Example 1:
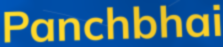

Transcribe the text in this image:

Panchbhai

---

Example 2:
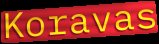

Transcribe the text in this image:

Koravas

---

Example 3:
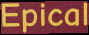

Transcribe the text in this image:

Epical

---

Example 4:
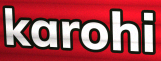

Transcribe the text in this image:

karohi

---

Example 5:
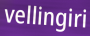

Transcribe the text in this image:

vellingiri